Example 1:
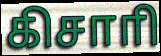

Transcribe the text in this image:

கிசாரி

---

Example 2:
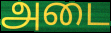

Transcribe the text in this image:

அடை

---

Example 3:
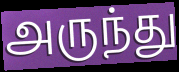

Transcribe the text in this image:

அருந்து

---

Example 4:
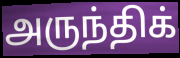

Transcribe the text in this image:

அருந்திக்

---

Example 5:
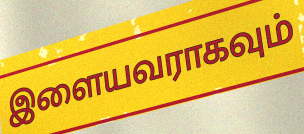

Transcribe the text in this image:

இளையவராகவும்